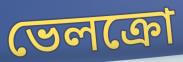
ভেলক্রো